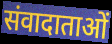
संवादाताओं